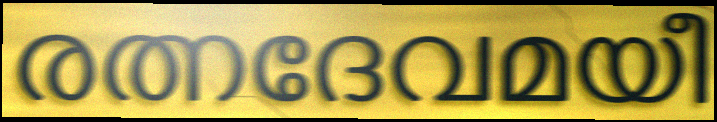
രത്നദേവമയീ